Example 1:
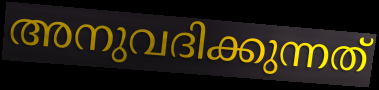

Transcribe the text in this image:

അനുവദിക്കുന്നത്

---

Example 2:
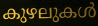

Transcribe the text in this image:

കുഴലുകൾ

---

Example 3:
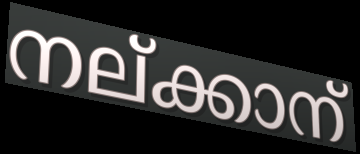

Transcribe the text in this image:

നല്ക്കാന്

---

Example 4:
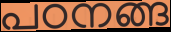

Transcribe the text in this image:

പഠനങ്ങ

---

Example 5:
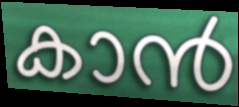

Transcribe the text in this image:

കാൻ